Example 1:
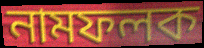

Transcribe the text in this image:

নামফলক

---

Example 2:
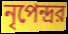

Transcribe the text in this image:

নৃপেন্দ্রর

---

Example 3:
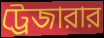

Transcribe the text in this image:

ট্রেজারার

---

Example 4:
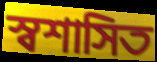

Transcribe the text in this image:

স্বশাসিত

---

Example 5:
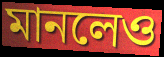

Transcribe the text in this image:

মানলেও